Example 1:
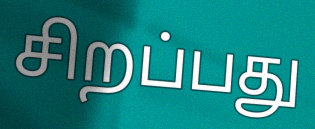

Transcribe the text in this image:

சிறப்பது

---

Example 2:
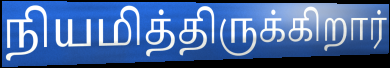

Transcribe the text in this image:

நியமித்திருக்கிறார்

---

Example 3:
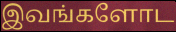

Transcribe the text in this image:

இவங்களோட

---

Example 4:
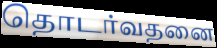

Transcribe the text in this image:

தொடர்வதனை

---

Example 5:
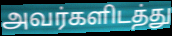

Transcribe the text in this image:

அவர்களிடத்து